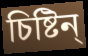
চিষ্টিন্